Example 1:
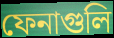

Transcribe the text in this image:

ফেনাগুলি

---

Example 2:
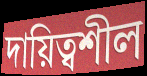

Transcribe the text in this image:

দায়িত্বশীল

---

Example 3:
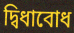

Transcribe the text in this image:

দ্বিধাবোধ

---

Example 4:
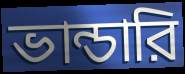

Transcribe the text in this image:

ভান্ডারি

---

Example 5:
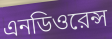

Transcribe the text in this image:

এনডিওরেন্স